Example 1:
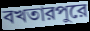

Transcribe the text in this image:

বখতারপুরে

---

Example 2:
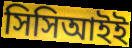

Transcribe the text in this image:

সিসিআইই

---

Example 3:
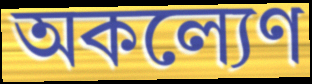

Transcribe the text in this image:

অকল্যেণ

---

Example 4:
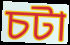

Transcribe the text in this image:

চটা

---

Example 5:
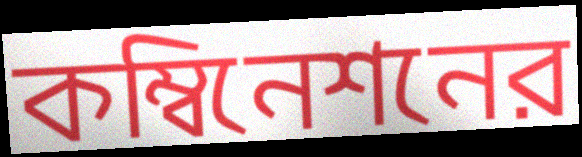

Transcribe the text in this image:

কম্বিনেশনের